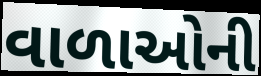
વાળાઓની